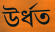
উৰ্ধত